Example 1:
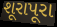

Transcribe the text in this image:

શૂરાપૂરા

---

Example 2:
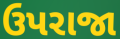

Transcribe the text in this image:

ઉપરાજા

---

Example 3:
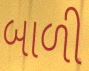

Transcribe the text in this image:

બાળી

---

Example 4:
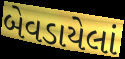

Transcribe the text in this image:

બેવડાયેલાં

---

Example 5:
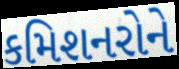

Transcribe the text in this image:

કમિશનરોને